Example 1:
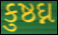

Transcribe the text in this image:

કુષ્ઠઘ્ન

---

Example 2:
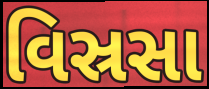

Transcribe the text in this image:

વિસ્રસા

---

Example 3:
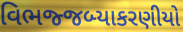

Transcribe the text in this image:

વિભજ્જબ્યાકરણીયો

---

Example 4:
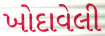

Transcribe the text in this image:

ખોદાવેલી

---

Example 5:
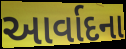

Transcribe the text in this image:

આર્વાદના